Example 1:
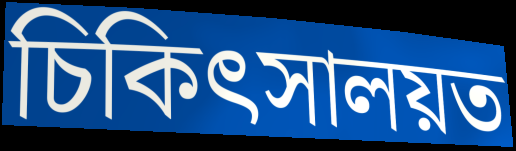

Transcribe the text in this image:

চিকিৎসালয়ত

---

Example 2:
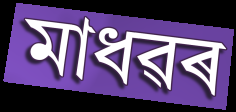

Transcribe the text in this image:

মাধৱৰ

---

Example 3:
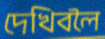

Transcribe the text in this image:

দেখিবলৈ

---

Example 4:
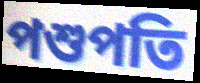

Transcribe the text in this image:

পশুপতি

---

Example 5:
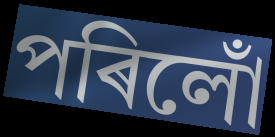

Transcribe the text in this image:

পৰিলোঁ